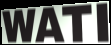
WATI